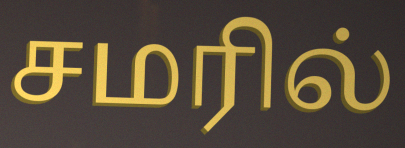
சமரில்